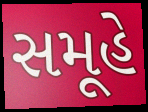
સમૂહે